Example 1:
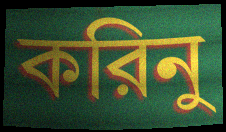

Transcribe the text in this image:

করিনু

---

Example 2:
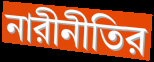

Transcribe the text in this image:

নারীনীতির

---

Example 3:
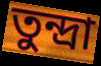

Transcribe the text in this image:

তুন্দ্রা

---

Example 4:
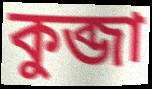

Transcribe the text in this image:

কুব্জা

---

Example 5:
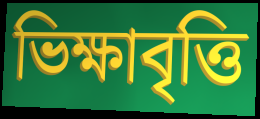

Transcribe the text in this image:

ভিক্ষাবৃত্তি